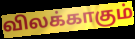
விலக்காகும்